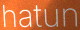
hatun